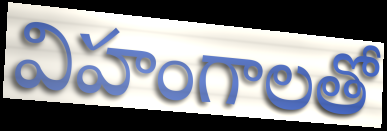
విహంగాలతో